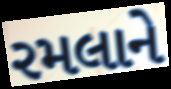
રમલાને